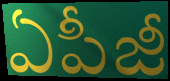
ఏపీజీ